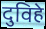
दुविहे